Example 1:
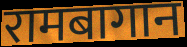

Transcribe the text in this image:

रामबागान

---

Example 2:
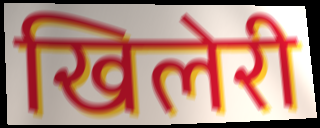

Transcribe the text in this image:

खिलेरी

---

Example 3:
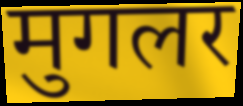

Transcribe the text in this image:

मुगलर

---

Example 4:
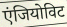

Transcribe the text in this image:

एंजियोविट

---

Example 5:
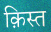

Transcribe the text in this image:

क़िस्त